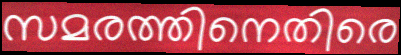
സമരത്തിനെതിരെ